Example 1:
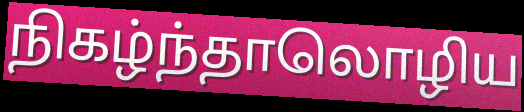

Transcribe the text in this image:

நிகழ்ந்தாலொழிய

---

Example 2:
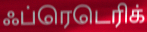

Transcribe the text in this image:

ஃப்ரெடெரிக்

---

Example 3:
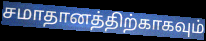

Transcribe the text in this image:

சமாதானத்திற்காகவும்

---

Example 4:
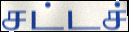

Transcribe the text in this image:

சட்டச்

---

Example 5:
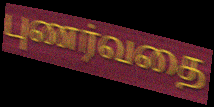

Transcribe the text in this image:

புணர்வதை